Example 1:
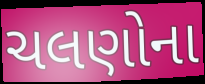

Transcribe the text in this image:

ચલણોના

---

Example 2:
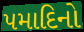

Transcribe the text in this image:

પમાદિનો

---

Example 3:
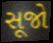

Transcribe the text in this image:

સૂજો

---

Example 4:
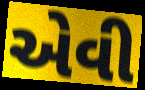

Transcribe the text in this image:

એવી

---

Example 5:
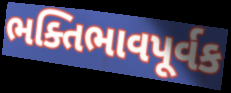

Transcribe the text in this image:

ભક્તિભાવપૂર્વક